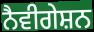
ਨੈਵੀਗੇਸ਼ਨ